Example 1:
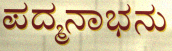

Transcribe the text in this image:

ಪದ್ಮನಾಭನು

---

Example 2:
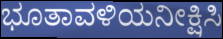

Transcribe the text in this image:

ಭೂತಾವಳಿಯನೀಕ್ಷಿಸಿ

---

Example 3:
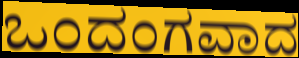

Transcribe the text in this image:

ಒಂದಂಗವಾದ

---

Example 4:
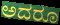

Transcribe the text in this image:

ಅದರೂ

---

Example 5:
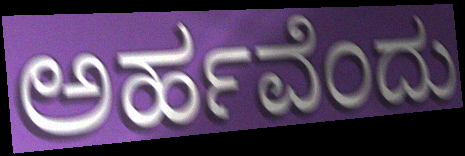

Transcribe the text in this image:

ಅರ್ಹವೆಂದು